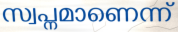
സ്വപ്നമാണെന്ന്